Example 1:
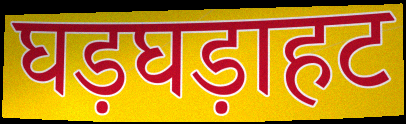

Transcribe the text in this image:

घड़घड़ाहट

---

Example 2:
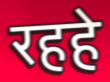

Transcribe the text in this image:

रहहे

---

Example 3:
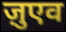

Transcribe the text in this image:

ज़ुएव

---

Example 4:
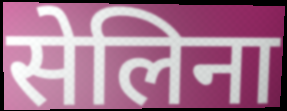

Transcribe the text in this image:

सेलिना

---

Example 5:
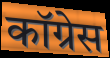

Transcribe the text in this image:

कॉग्रेस